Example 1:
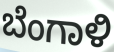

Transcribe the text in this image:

ಬೆಂಗಾಳಿ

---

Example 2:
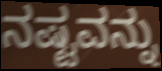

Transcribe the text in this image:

ನಷ್ಟವನ್ನು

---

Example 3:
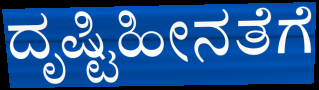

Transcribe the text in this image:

ದೃಷ್ಟಿಹೀನತೆಗೆ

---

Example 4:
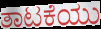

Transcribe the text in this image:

ತಾಟಕೆಯು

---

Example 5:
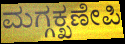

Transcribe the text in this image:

ಮಗ್ಗಕ್ಖಣೇಪಿ